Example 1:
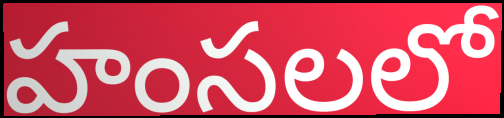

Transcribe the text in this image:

హంసలలో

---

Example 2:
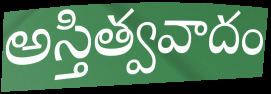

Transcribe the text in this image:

అస్తిత్వవాదం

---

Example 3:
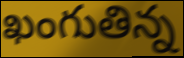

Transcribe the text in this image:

ఖంగుతిన్న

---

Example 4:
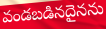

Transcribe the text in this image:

వండబడినదైనను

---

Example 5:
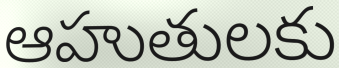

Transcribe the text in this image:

ఆహుతులకు